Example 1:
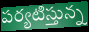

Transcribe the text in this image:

పర్యటిస్తున్న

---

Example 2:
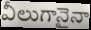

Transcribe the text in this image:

వీలుగానైనా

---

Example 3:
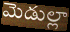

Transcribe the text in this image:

మెడుల్లా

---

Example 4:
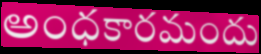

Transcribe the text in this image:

అంధకారమందు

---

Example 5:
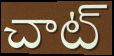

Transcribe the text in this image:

చాట్